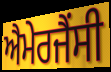
ਐਮੇਰਜੈਂਸੀ